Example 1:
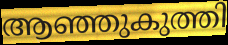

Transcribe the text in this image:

ആഞ്ഞുകുത്തി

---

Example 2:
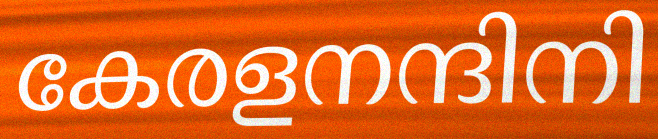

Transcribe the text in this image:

കേരളനന്ദിനി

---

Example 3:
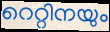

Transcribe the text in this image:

റെറ്റിനയും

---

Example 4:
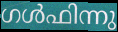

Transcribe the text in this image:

ഗൾഫിന്നു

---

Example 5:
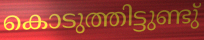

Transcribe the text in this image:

കൊടുത്തിട്ടുണ്ടു്